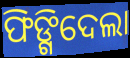
ଫିଙ୍ଗିଦେଲା